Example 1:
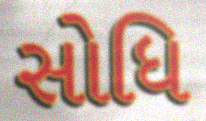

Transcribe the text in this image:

સોધિ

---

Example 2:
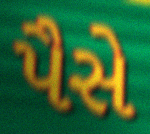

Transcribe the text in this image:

પૈસે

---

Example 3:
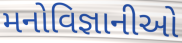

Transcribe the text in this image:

મનોવિજ્ઞાનીઓ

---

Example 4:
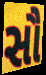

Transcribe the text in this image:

સૌ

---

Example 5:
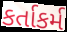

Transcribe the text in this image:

કર્તાકર્મ